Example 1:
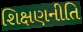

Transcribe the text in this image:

શિક્ષણનીતિ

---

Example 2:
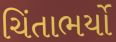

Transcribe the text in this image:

ચિંતાભર્યો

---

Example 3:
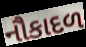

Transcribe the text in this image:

નૌકાદળ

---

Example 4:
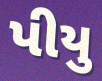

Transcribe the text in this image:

પીયુ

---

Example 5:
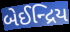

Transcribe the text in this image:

બેઈન્દ્રિય